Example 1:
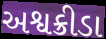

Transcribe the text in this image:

અશ્વક્રીડા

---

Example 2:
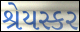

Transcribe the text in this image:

શ્રેયસ્કર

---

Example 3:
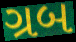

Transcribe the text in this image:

ગ્રબ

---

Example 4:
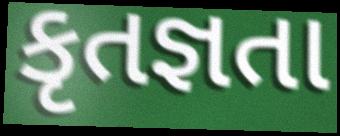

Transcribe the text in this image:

કૃતજ્ઞતા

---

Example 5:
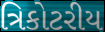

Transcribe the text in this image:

ત્રિકોટરીય